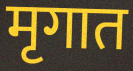
मृगात